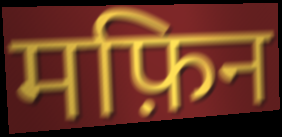
मफ़िन